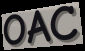
OAC